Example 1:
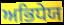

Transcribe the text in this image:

ਅਭਿਧੇਯ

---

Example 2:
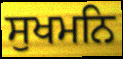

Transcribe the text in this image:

ਸੁਖਮਨਿ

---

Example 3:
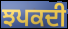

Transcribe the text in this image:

ਝਪਕਦੀ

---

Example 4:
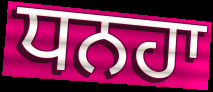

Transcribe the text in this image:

ਧਨਹਾ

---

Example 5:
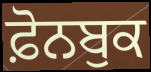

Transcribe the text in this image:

ਫ਼ੋਨਬੁਕ